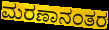
ಮರಣಾನಂತರ